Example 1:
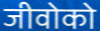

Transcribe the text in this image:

जीवोको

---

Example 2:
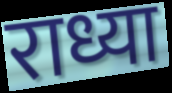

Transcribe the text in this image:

राध्या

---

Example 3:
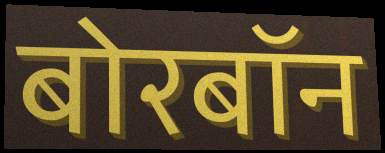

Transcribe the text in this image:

बोरबॉन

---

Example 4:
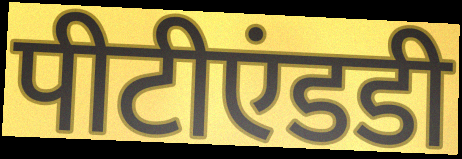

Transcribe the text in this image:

पीटीएंडडी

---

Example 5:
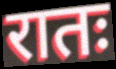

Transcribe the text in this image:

रातः